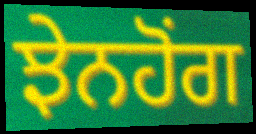
ਝੇਨਹੋਂਗ